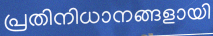
പ്രതിനിധാനങ്ങളായി